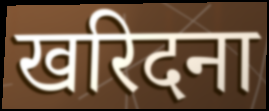
खरिदना